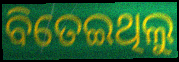
ବିତେଇଥିଲୁ